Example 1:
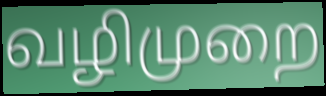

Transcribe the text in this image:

வழிமுறை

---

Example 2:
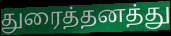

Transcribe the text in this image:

துரைத்தனத்து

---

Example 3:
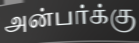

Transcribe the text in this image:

அன்பர்க்கு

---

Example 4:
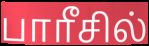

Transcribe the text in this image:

பாரீசில்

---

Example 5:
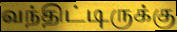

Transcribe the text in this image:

வந்திட்டிருக்கு